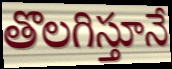
తొలగిస్తూనే